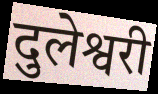
दुलेश्वरी